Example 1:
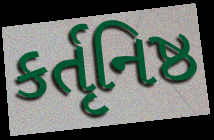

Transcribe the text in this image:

કર્તૃનિષ્ઠ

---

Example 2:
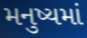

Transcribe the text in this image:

મનુષ્યમાં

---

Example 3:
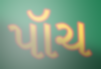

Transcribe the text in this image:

પૉચ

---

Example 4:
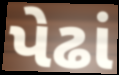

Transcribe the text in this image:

પેઢાં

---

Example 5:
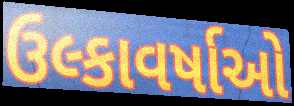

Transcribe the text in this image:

ઉલ્કાવર્ષાઓ